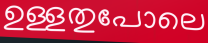
ഉള്ളതുപോലെ